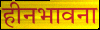
हीनभावना